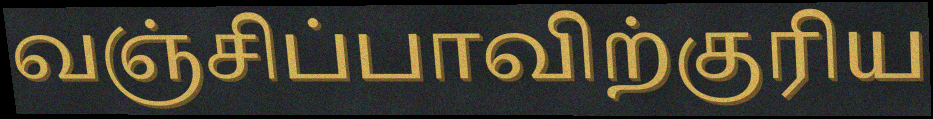
வஞ்சிப்பாவிற்குரிய